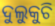
ଦୁଲୁକୁଚି